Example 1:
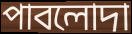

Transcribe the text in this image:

পাবলোদা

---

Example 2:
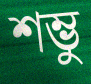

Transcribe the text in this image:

শম্ভু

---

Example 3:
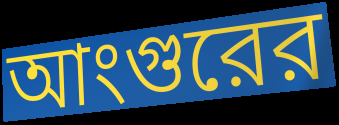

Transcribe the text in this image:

আংগুরের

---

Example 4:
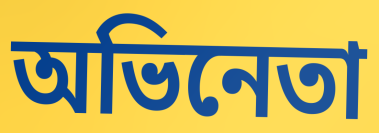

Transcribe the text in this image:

অভিনেতা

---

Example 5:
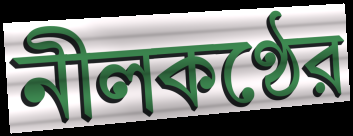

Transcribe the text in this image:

নীলকণ্ঠের